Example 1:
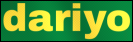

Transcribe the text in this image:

dariyo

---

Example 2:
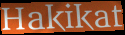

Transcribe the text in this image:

Hakikat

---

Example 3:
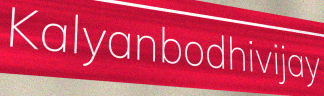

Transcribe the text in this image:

Kalyanbodhivijay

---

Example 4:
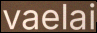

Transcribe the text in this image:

vaelai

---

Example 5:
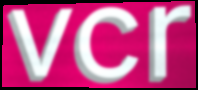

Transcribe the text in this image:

vcr